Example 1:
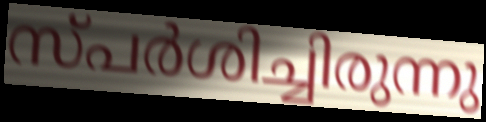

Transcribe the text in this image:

സ്പർശിച്ചിരുന്നു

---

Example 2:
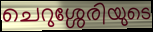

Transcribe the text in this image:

ചെറുശ്ശേരിയുടെ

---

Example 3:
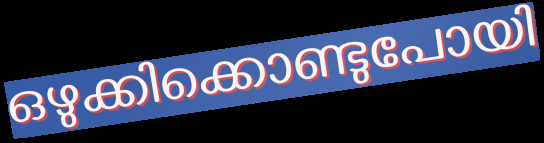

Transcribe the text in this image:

ഒഴുക്കിക്കൊണ്ടുപോയി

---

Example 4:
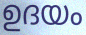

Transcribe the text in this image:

ഉദയം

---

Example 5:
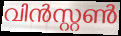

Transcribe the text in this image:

വിൻസ്റ്റൺ